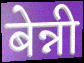
बेन्नी